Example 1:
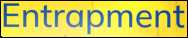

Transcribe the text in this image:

Entrapment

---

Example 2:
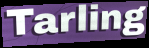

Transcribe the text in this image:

Tarling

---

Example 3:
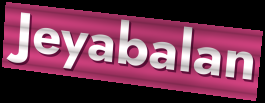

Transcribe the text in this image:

Jeyabalan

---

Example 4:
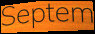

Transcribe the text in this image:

Septem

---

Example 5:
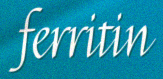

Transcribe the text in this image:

ferritin